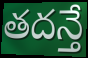
తదన్తే